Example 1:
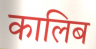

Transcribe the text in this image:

कालिब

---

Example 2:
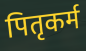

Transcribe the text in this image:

पितृकर्म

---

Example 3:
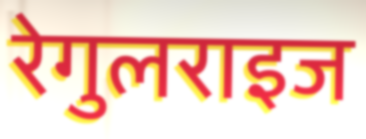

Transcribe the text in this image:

रेगुलराइज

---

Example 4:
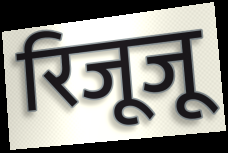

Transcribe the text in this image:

रिजूजू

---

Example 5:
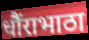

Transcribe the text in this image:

धौंराभाठा